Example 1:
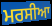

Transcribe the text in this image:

ਮਰਸੀਆ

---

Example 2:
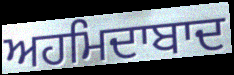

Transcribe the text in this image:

ਅਹਮਿਦਾਬਾਦ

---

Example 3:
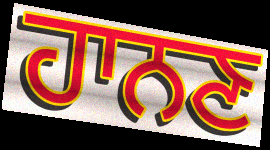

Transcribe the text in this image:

ਹਾਨਣ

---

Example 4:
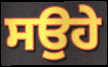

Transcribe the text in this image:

ਸਉਹੇ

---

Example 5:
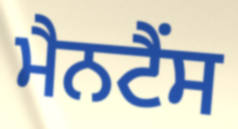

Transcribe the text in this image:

ਮੈਨਟੈਂਸ